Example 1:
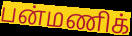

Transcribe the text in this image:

பன்மணிக்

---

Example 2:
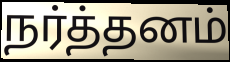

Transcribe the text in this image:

நர்த்தனம்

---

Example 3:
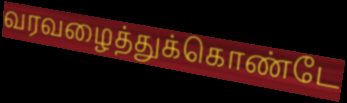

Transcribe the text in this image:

வரவழைத்துக்கொண்டே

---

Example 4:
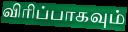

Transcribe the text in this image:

விரிப்பாகவும்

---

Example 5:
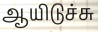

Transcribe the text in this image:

ஆயிடுச்சு